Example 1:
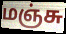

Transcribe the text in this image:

மஞ்சு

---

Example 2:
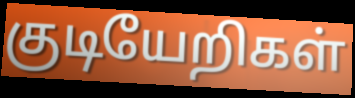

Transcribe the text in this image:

குடியேறிகள்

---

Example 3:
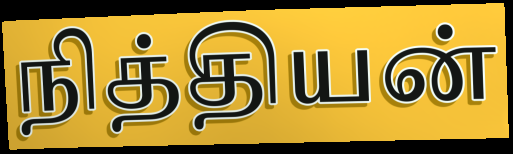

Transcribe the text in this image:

நித்தியன்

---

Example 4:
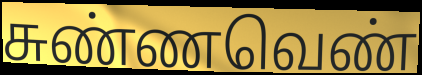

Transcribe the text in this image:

சுண்ணவெண்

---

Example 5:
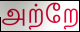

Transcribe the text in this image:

அற்றே